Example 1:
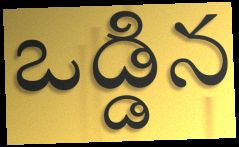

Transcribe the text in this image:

ఒడ్డిన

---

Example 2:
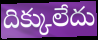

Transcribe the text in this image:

దిక్కులేదు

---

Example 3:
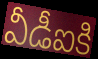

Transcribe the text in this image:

వీడీఐకి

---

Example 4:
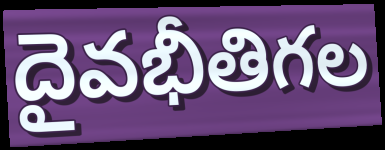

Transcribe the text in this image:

దైవభీతిగల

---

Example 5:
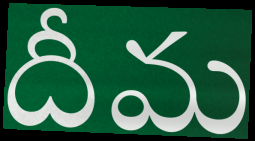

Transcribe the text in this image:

దీమ